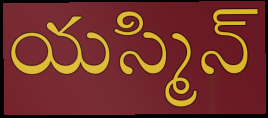
యస్మిన్